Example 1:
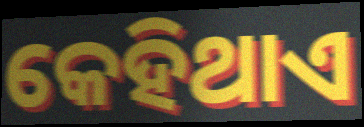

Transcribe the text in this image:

କେହିଥାଏ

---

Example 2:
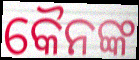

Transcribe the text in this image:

କୈନଙ୍କ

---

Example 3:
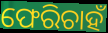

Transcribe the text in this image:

ଫେରିଚାହଁ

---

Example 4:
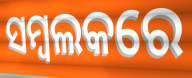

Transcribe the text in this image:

ସମ୍ବଲକରେ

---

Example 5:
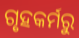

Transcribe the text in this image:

ଗୃହକର୍ମରୁ